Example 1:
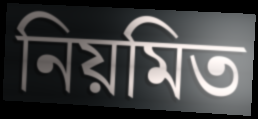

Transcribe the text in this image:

নিয়মিত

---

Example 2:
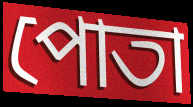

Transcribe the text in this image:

পোতা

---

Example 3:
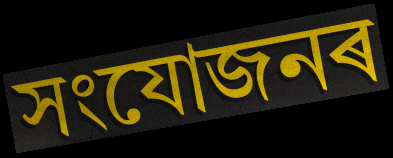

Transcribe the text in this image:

সংযোজনৰ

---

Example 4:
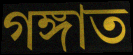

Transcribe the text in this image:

গঙ্গাত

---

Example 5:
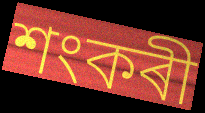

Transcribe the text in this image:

শংকৰী